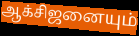
ஆக்சிஜனையும்